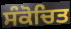
ਸੰਕੋਚਿਤ